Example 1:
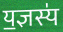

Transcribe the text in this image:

य॒ज्ञस्य॑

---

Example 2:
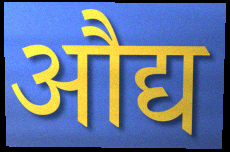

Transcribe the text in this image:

औद्य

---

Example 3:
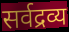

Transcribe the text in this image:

सर्वद्रव्य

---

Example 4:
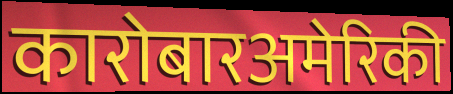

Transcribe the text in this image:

कारोबारअमेरिकी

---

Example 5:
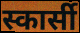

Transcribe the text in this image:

स्कार्सी